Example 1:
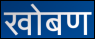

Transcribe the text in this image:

खोबण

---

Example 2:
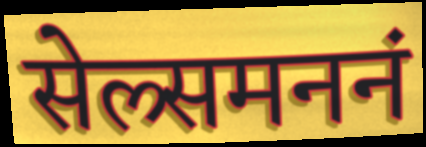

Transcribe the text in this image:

सेल्समननं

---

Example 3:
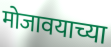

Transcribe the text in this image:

मोजावयाच्या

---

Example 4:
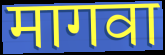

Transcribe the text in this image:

मागवा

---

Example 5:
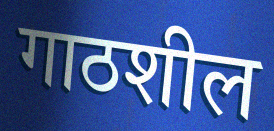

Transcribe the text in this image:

गाठशील